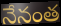
నేనంత